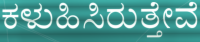
ಕಳುಹಿಸಿರುತ್ತೇವೆ